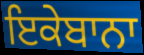
ਇਕੇਬਾਨਾ